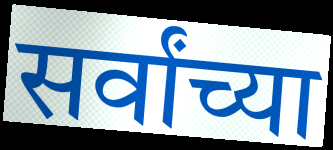
सर्वांच्या